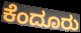
ಕೆಂದೂರು